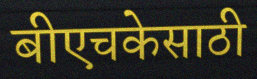
बीएचकेसाठी